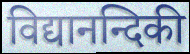
विद्यानन्दिकी